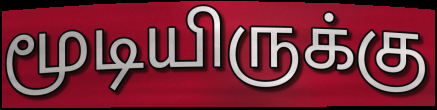
மூடியிருக்கு